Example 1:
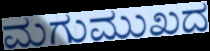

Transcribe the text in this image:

ಮಗುಮುಖದ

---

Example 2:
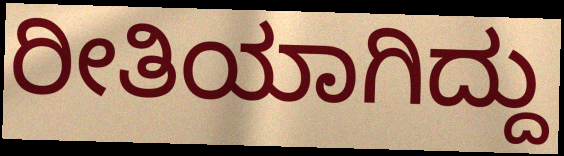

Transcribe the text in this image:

ರೀತಿಯಾಗಿದ್ದು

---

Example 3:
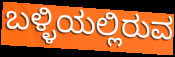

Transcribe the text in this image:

ಬಳ್ಳಿಯಲ್ಲಿರುವ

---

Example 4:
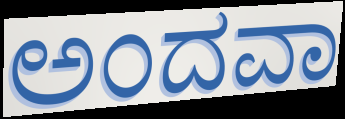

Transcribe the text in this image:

ಅಂದವಾ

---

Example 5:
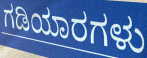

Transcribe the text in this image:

ಗಡಿಯಾರಗಳು